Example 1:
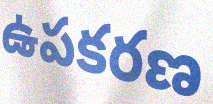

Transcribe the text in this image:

ఉపకరణ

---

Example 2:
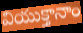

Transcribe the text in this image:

వియుక్తానాం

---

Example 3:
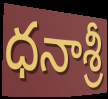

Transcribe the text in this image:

ధనాశ్రీ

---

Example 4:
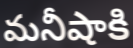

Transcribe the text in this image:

మనీషాకి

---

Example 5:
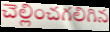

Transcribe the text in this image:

చెల్లించగలిగిన